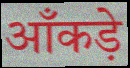
आँकड़े